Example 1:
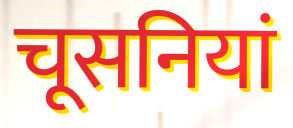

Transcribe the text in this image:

चूसनियां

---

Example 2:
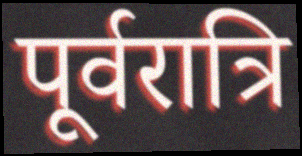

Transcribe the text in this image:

पूर्वरात्रि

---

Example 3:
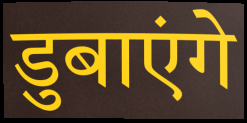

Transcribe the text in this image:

डुबाएंगे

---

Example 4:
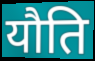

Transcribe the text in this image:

यौति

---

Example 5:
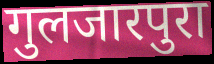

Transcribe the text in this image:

गुलजारपुरा